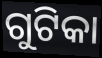
ଗୁଟିକା